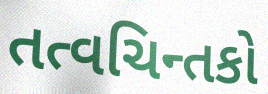
તત્વચિન્તકો